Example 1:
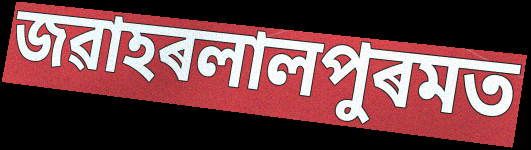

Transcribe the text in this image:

জৱাহৰলালপুৰমত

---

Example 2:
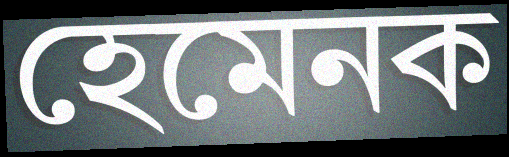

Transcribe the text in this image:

হেমেনক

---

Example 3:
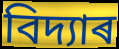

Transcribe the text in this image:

বিদ্যাৰ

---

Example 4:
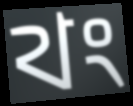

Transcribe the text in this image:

থং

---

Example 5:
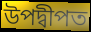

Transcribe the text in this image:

উপদ্বীপত